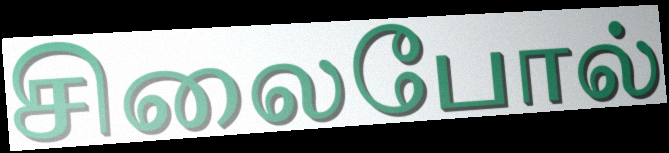
சிலைபோல்